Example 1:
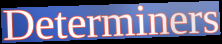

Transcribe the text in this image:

Determiners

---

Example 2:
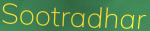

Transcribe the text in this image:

Sootradhar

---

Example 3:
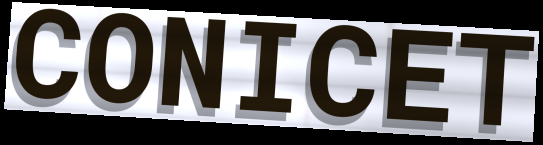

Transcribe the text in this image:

CONICET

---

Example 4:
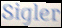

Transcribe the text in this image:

Sigler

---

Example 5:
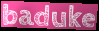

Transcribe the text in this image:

baduke